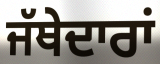
ਜੱਥੇਦਾਰਾਂ